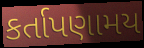
કર્તાપણામય